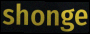
shonge